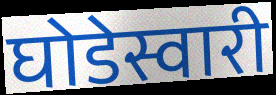
घोडेस्वारी